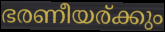
ഭരണീയര്ക്കും